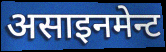
असाइनमेन्ट